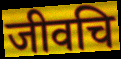
जीवचि